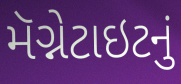
મૅગ્નેટાઇટનું